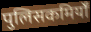
पुलिसकमिर्यों